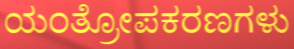
ಯಂತ್ರೋಪಕರಣಗಳು